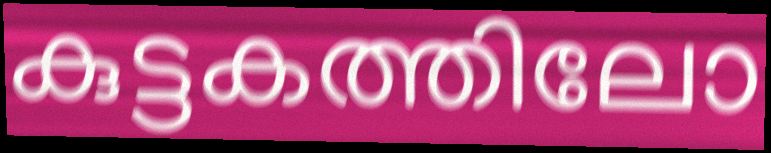
കുട്ടകത്തിലോ